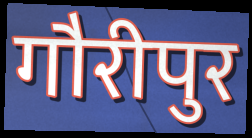
गौरीपुर